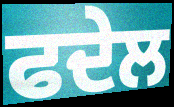
ਫਦੇਲ